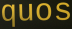
quos